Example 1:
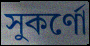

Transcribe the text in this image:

সুকৰ্ণো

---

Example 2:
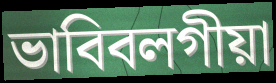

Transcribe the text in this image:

ভাবিবলগীয়া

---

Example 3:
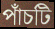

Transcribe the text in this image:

পাঁচটি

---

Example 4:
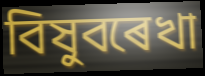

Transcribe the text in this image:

বিষুবৰেখা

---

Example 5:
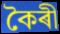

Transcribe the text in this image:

কৈৰী